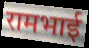
रामभाई